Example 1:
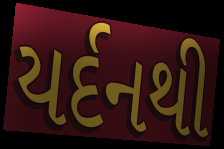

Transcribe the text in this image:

યર્દનથી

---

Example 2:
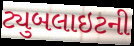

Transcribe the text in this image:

ટ્યુબલાઇટની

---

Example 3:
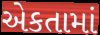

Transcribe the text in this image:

એકતામાં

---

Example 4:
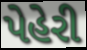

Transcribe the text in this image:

પેહેરી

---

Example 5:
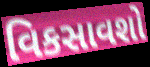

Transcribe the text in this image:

વિકસાવશો